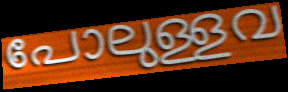
പോലുള്ളവ